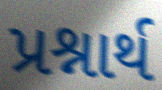
પ્રશ્નાર્થ